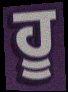
ਹੂ